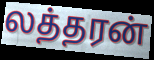
லத்தரன்